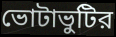
ভোটাভুটির